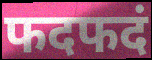
फदफदं